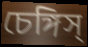
চেঙ্গিস্